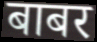
बाबर